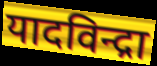
यादविन्द्रा